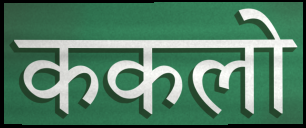
ककलो